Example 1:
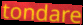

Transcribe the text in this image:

tondare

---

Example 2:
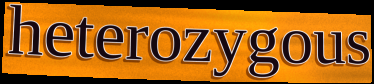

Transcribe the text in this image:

heterozygous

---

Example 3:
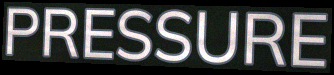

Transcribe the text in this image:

PRESSURE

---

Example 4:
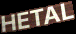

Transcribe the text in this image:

HETAL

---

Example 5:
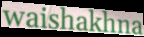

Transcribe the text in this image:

waishakhna